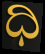
ಧಿ